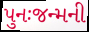
પુનઃજન્મની